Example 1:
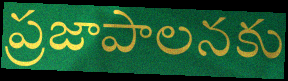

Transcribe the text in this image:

ప్రజాపాలనకు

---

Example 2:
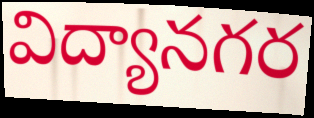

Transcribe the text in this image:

విద్యానగర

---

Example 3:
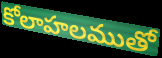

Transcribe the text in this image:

కోలాహలముతో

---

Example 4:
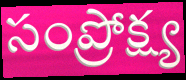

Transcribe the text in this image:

సంప్రోక్ష్య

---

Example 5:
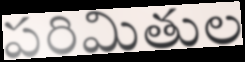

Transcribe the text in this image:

పరిమితుల